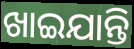
ଖାଇଯାନ୍ତି